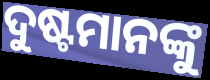
ଦୁଷ୍ଟମାନଙ୍କୁ